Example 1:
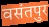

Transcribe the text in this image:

वसंतपुर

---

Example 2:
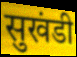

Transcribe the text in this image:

सुखंडी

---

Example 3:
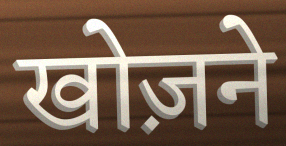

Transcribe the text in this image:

खोज़ने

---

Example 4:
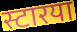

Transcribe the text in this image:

स्टारया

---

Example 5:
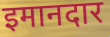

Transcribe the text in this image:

इमानदार